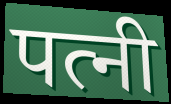
पत्नी